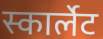
स्कार्लेट